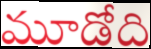
మూడోది